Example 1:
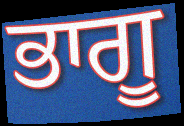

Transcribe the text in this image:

ਭਾਗੂ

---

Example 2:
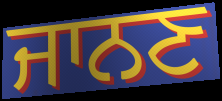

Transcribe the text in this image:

ਜਾਨਣ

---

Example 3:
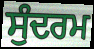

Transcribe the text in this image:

ਸੁੰਦਰਮ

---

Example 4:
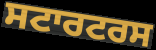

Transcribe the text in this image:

ਸਟਾਰਟਰਸ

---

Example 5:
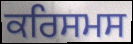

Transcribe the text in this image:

ਕਰਿਸਮਸ